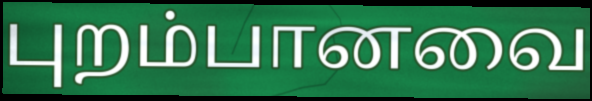
புறம்பானவை